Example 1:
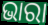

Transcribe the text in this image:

ଭାରା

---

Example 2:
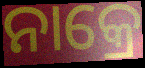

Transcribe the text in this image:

ନାକ୍ରେ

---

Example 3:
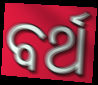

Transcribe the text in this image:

ବର୍ଥ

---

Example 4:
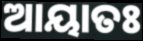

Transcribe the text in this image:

ଆୟାତଃ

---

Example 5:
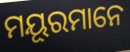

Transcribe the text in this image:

ମୟୂରମାନେ